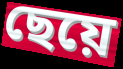
ছেয়ে